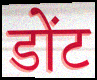
डोंट